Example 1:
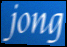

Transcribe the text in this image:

jong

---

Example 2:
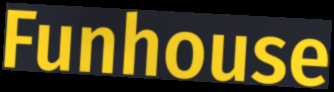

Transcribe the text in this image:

Funhouse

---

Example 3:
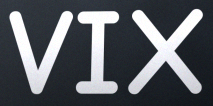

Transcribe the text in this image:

VIX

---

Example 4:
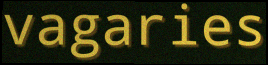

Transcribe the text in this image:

vagaries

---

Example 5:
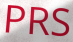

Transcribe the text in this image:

PRS